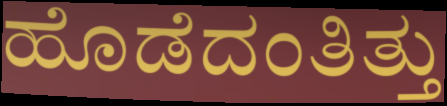
ಹೊಡೆದಂತಿತ್ತು